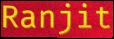
Ranjit